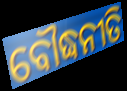
ବୌଦ୍ଧନୀତି